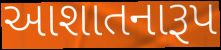
આશાતનારૂપ